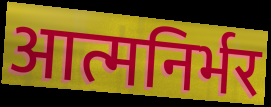
आत्मनिर्भर